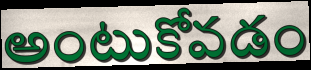
అంటుకోవడం